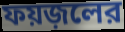
ফয়জ়লের